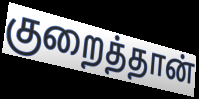
குறைத்தான்